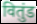
वितुंड